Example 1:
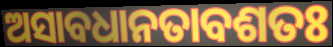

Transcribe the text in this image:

ଅସାବଧାନତାବଶତଃ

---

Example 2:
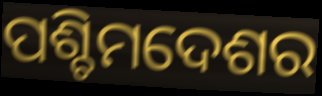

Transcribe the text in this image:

ପଶ୍ଚିମଦେଶର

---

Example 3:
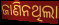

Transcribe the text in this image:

ଜାଣିନଥିଲା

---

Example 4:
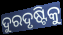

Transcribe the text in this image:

ଦୁରଦୃଷ୍ଟିକୁ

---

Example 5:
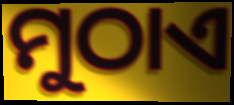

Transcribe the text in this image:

ମୁଠାଏ